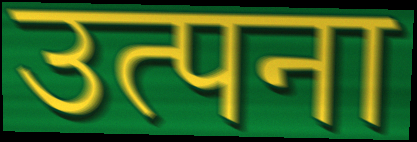
उत्पना